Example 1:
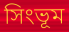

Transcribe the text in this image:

সিংভূম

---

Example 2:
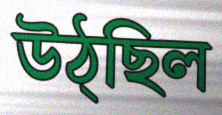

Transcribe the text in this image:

উঠ্ছিল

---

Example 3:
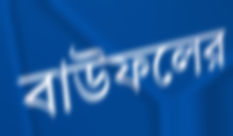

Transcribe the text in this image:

বাউফলের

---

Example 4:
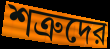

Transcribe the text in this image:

শত্রুদের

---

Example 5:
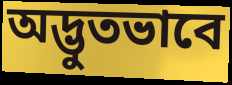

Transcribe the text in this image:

অদ্ভুতভাবে